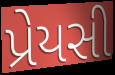
પ્રેયસી